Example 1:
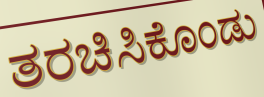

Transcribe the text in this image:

ತರಚಿಸಿಕೊಂಡು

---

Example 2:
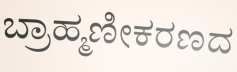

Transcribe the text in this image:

ಬ್ರಾಹ್ಮಣೀಕರಣದ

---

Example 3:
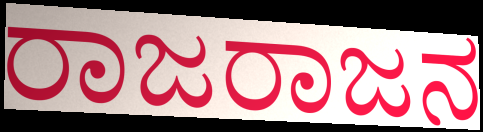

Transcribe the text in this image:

ರಾಜರಾಜನ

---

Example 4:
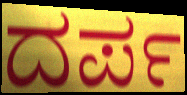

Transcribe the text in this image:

ದರ್ಪ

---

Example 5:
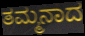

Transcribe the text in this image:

ತಮ್ಮನಾದ